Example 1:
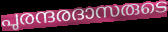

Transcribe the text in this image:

പുരന്ദരദാസരുടെ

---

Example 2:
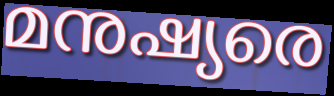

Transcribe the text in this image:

മനുഷ്യരെ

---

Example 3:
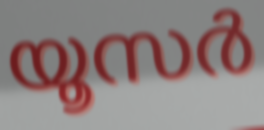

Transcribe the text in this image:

യൂസർ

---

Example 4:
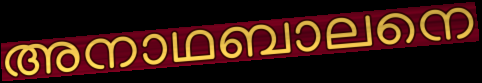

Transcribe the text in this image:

അനാഥബാലനെ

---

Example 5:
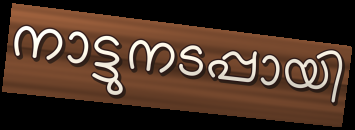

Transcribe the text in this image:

നാട്ടുനടപ്പായി